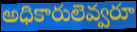
అధికారులెవ్వరూ